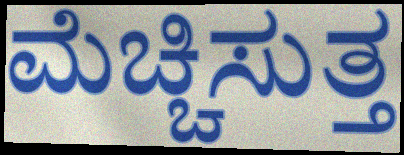
ಮೆಚ್ಚಿಸುತ್ತ